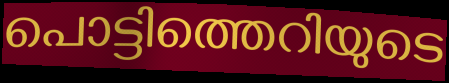
പൊട്ടിത്തെറിയുടെ